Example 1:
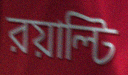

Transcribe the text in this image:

রয়াল্টি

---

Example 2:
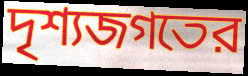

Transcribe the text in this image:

দৃশ্যজগতের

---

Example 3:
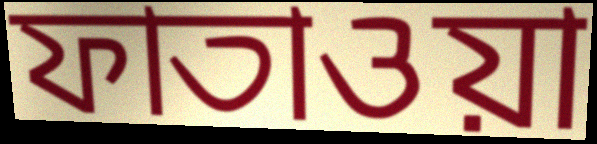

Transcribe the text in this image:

ফাতাওয়া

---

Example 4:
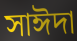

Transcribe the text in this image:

সাঈদা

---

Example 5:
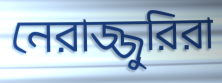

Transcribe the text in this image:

নেরাজ্জুরিরা